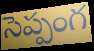
సెప్పంగ